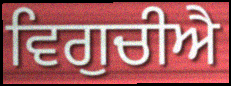
ਵਿਗੁਚੀਐ